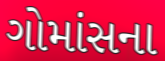
ગોમાંસના